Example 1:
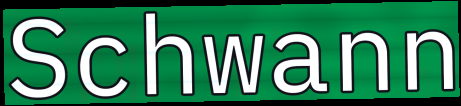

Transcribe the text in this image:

Schwann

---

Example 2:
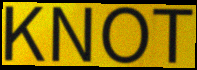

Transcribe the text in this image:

KNOT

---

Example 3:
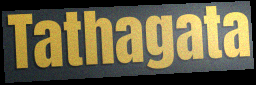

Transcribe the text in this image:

Tathagata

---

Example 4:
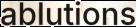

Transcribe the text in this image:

ablutions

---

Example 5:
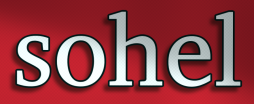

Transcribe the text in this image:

sohel